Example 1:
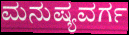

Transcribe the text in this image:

ಮನುಷ್ಯವರ್ಗ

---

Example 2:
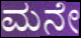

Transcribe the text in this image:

ಮನೇ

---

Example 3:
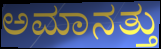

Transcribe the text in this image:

ಅಮಾನತ್ತು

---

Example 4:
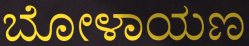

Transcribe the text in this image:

ಬೋಳಾಯಣ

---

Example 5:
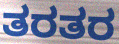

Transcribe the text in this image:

ತರತರ